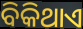
ବିକିଥାଏ